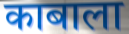
काबाला